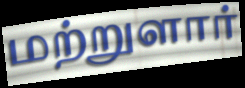
மற்றுளார்